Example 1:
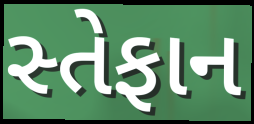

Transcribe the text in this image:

સ્તેફાન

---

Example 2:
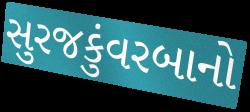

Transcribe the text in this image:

સુરજકુંવરબાનો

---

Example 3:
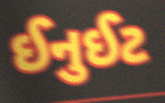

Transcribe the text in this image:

ઈનુઈટ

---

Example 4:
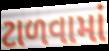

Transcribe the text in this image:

ટાળવામાં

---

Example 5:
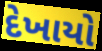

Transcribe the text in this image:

દેખાયો